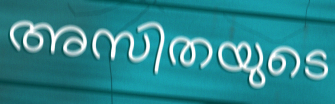
അസിതയുടെ